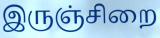
இருஞ்சிறை